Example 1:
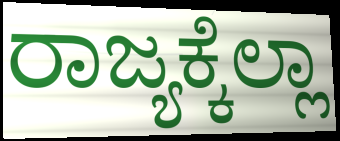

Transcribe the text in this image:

ರಾಜ್ಯಕ್ಕೆಲ್ಲಾ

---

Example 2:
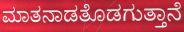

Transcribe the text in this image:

ಮಾತನಾಡತೊಡಗುತ್ತಾನೆ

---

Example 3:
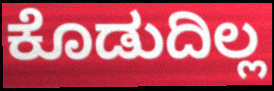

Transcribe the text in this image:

ಕೊಡುದಿಲ್ಲ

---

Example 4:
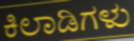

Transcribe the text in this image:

ಕಿಲಾಡಿಗಳು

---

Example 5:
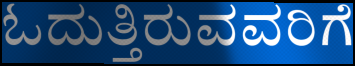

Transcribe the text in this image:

ಓದುತ್ತಿರುವವರಿಗೆ